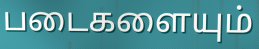
படைகளையும்